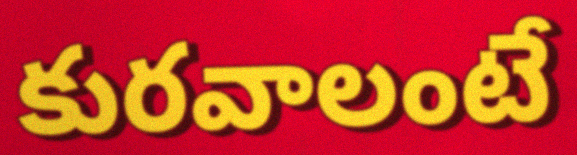
కురవాలంటే